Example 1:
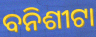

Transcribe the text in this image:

ବନିଶୀଟା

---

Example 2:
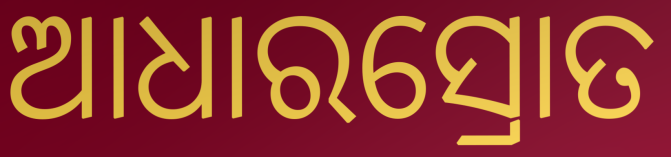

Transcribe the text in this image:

ଆଧାରସ୍ରୋତ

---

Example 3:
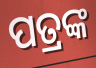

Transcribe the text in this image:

ପତ୍ରଙ୍କ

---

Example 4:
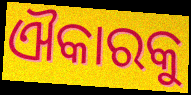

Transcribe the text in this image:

ଐକାରକୁ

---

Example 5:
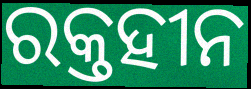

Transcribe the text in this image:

ରକ୍ତହୀନ